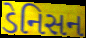
ડેનિસન